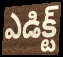
ఎడిక్ట్